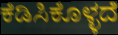
ಕೆಡಿಸಿಕೊಳ್ಳದೆ